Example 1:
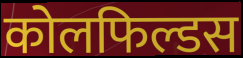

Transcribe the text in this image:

कोलफिल्डस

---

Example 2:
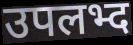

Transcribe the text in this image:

उपलभ्द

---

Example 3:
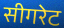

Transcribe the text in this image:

सीगरेट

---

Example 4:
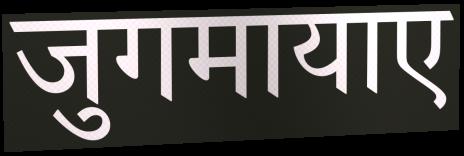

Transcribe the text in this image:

जुगमायाए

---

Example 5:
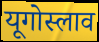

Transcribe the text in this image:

यूगोस्लाव